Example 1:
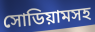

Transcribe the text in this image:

সোডিয়ামসহ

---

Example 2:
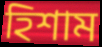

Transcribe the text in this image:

হিশাম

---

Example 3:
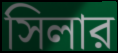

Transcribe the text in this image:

সিলার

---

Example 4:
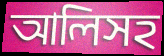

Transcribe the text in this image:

আলিসহ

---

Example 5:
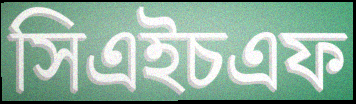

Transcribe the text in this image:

সিএইচএফ